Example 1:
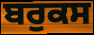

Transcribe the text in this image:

ਬਰੁਕਸ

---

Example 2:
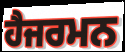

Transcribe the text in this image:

ਹੈਜਰਮਨ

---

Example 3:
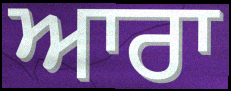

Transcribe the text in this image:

ਆਰਾ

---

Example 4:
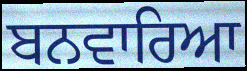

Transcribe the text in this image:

ਬਨਵਾਰਿਆ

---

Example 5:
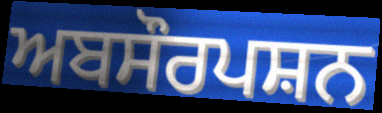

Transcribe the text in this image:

ਅਬਸੌਰਪਸ਼ਨ